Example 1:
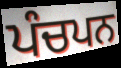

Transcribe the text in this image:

ਪੰਚਪਨ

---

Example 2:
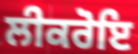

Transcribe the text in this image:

ਲੀਕਰੋਇ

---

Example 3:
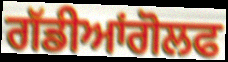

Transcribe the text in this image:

ਗੱਡੀਆਂਗੋਲਫ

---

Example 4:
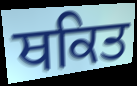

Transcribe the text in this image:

ਥਕਿਤ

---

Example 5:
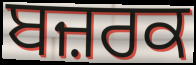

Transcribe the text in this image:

ਬਜ਼ਰਕ